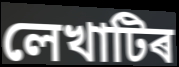
লেখাটিৰ